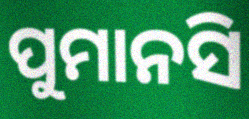
ପୁମାନସି